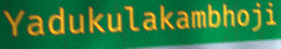
Yadukulakambhoji